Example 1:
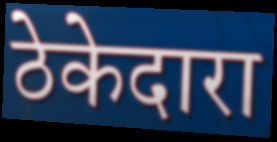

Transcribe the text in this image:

ठेकेदारा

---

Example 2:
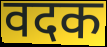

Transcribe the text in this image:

वदक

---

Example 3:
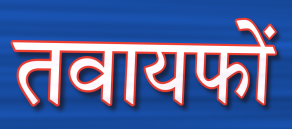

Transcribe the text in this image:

तवायफों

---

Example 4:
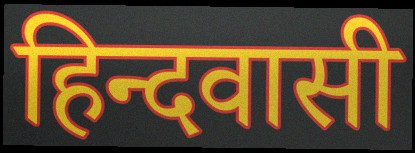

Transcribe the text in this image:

हिन्दवासी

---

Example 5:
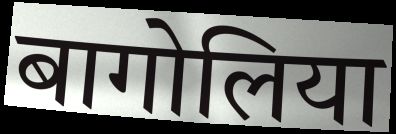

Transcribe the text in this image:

बागोलिया